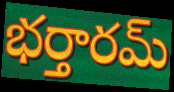
భర్తారమ్